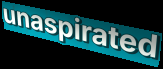
unaspirated